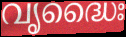
വൃദ്ധൈഃ